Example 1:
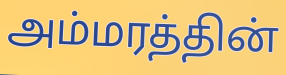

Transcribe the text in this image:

அம்மரத்தின்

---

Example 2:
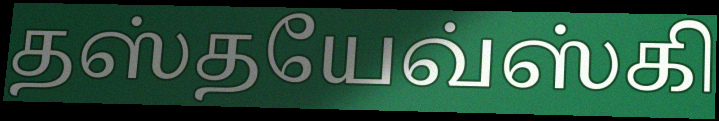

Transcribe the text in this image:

தஸ்தயேவ்ஸ்கி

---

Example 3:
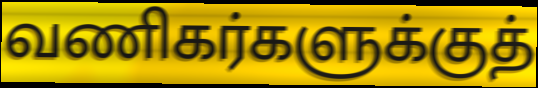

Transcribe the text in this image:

வணிகர்களுக்குத்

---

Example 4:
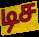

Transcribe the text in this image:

டிச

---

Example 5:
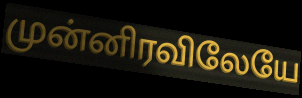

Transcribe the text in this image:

முன்னிரவிலேயே